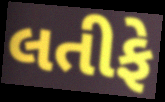
લતીફે